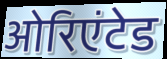
ओरिएंटेड